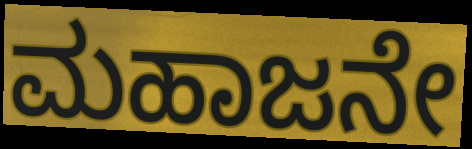
ಮಹಾಜನೇ